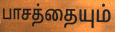
பாசத்தையும்